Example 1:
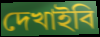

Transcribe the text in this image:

দেখাইবি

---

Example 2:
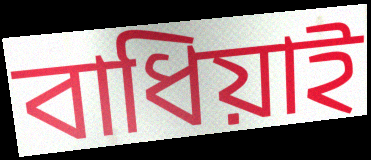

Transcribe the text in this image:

বাধিয়াই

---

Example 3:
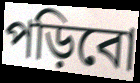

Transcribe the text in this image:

পড়িবো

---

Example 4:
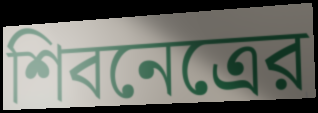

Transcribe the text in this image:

শিবনেত্রের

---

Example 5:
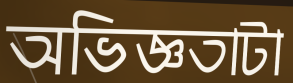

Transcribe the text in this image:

অভিজ্ঞতাটা